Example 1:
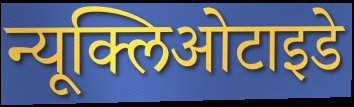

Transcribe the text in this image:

न्यूक्लिओटाइडे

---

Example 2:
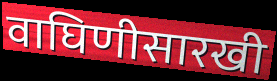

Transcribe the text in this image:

वाघिणीसारखी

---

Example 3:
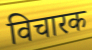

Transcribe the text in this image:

विचारक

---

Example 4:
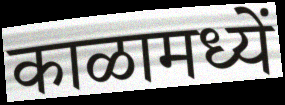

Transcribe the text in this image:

काळामध्यें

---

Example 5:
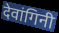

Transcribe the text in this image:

देवांगिनी